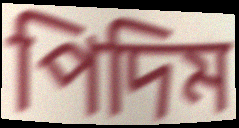
পিদিম